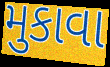
મુકાવા